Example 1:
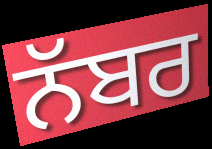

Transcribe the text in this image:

ਨੱਬਰ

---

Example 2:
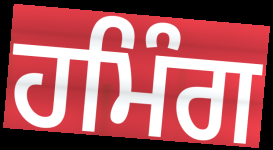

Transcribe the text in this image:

ਹਮਿੰਗ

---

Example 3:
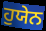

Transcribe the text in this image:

ਹੁਯੇਨ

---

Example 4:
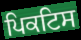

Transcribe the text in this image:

ਪਿਕਟਿਸ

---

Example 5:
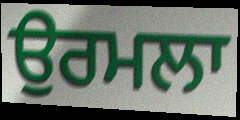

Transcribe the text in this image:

ਉਰਮਲਾ